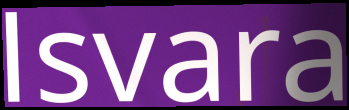
Isvara